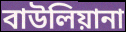
বাউলিয়ানা